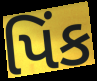
પિંક